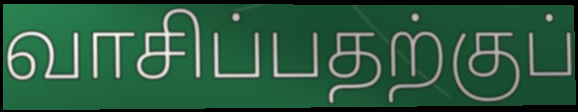
வாசிப்பதற்குப்